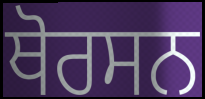
ਥੋਰਸਨ